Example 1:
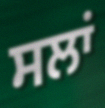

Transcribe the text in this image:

ਸਲਾਂ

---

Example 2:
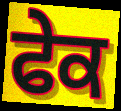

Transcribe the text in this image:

ਫੇਕ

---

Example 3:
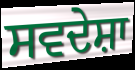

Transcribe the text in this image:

ਸਵਦੇਸ਼ਾ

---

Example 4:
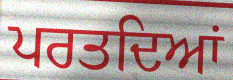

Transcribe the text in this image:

ਪਰਤਦਿਆਂ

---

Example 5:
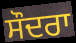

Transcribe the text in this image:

ਸੌਦਰਾ